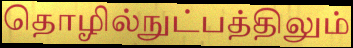
தொழில்நுட்பத்திலும்